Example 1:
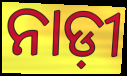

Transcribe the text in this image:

ନାଡ଼ୀ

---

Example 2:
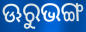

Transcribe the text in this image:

ଊରୁଭଙ୍ଗ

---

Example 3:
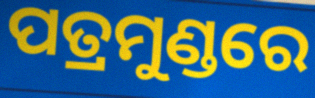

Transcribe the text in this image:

ପତ୍ରମୁଣ୍ଡରେ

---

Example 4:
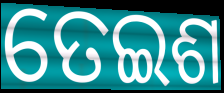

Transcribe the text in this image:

ତେଇଶ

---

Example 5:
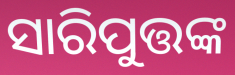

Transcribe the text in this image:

ସାରିପୁତ୍ତଙ୍କ